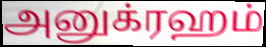
அனுக்ரஹம்